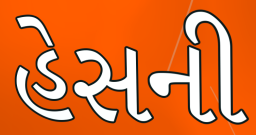
હેસની